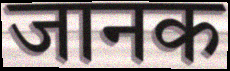
जानक